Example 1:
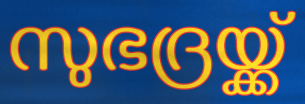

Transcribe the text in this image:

സുഭദ്രയ്ക്ക്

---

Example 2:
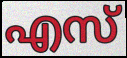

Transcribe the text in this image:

എസ്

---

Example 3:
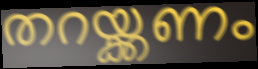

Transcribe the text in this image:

തറയ്ക്കണം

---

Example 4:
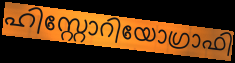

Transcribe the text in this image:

ഹിസ്റ്റോറിയോഗ്രാഫി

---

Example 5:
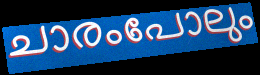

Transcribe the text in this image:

ചാരംപോലും